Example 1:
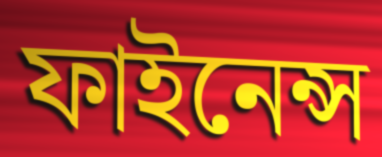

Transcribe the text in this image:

ফাইনেন্স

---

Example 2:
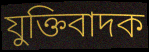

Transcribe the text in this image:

যুক্তিবাদক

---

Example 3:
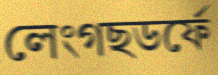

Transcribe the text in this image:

লেংগছডৰ্ফে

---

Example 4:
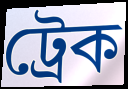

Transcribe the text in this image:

ট্ৰেক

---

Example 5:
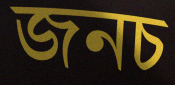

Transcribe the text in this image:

জনচ